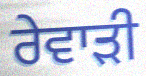
ਰੇਵਾਡ਼ੀ